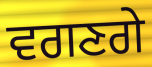
ਵਗਣਗੇ